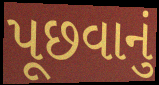
પૂછવાનું